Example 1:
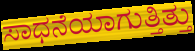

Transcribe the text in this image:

ಸಾಧನೆಯಾಗುತ್ತಿತ್ತು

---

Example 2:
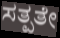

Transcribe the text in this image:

ಸತ್ಪತೇ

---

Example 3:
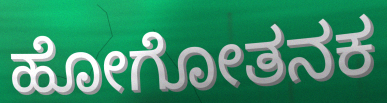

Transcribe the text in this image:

ಹೋಗೋತನಕ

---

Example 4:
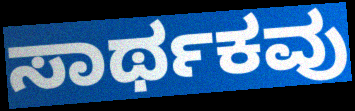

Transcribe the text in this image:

ಸಾರ್ಥಕವು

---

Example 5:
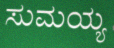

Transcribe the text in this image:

ಸುಮಯ್ಯ